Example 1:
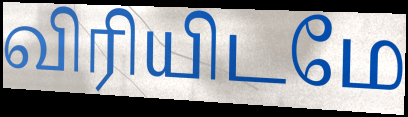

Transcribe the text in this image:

விரியிடமே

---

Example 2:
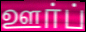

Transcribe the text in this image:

ஊர்ப்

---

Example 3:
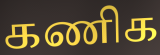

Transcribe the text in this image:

கணிக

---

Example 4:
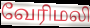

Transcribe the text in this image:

வேரிமலி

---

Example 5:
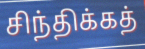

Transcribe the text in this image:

சிந்திக்கத்